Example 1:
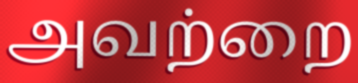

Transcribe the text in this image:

அவற்றை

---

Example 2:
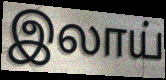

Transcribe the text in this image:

இலாய்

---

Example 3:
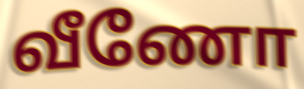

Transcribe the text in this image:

வீணோ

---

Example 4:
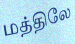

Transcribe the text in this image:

மத்திலே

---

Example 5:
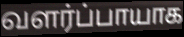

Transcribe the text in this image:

வளர்ப்பாயாக